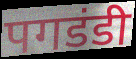
पगडंडी